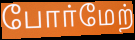
போர்மேற்